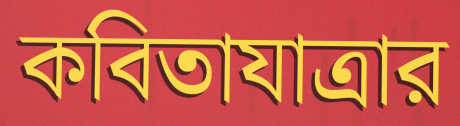
কবিতাযাত্রার